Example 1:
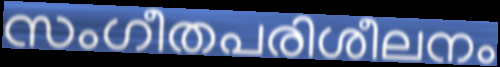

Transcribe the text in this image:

സംഗീതപരിശീലനം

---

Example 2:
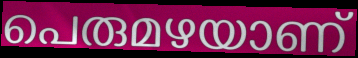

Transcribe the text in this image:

പെരുമഴയാണ്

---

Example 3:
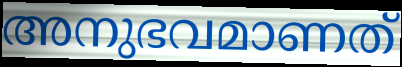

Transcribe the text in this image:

അനുഭവമാണത്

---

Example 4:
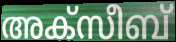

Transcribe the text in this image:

അക്സീബ്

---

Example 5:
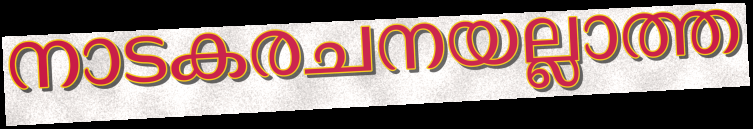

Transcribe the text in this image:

നാടകരചനയല്ലാത്ത